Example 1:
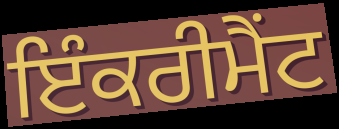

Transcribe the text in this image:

ਇੰਕਰੀਮੈਂਟ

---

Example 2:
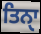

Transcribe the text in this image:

ਤਿਨੑਾ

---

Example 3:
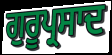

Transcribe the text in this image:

ਗੁਰੂਪ੍ਰਸਾਦ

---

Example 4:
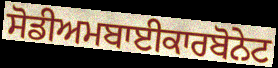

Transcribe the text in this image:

ਸੋਡੀਅਮਬਾਈਕਾਰਬੋਨੇਟ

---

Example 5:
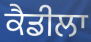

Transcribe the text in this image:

ਕੈਡੀਲਾ